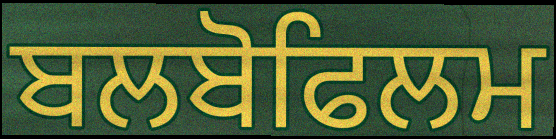
ਬਲਬੋਫਿਲਮ